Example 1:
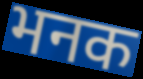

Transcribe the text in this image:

भनक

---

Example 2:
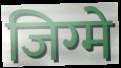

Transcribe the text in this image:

जिग्मे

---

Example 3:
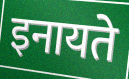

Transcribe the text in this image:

इनायते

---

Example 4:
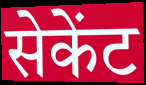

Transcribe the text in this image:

सेकेंट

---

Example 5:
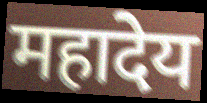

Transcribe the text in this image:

महादेय